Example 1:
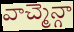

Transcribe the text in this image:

వాచ్మెన్గా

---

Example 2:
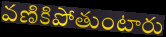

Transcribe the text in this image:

వణికిపోతుంటారు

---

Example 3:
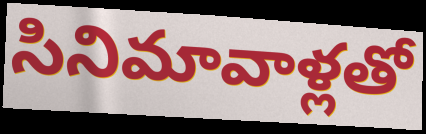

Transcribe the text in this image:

సినిమావాళ్లతో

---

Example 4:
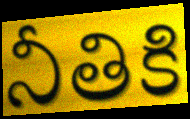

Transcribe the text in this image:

నీతికి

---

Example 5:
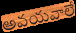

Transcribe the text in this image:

అవయవాలే